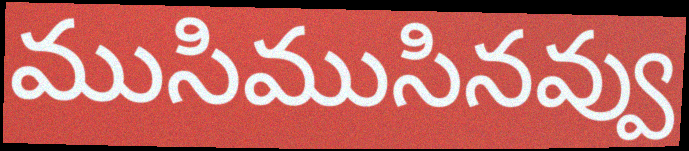
ముసిముసినవ్వు